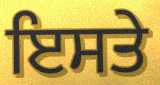
ਇਸਤੇ